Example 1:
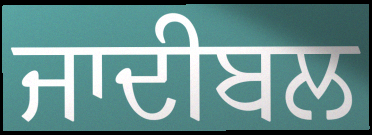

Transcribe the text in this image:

ਜਾਦੀਬਲ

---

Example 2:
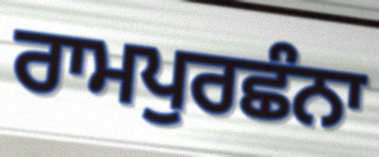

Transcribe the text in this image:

ਰਾਮਪੁਰਛੰਨਾ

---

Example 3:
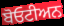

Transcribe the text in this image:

ਬੋਓਟੀਅਨ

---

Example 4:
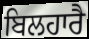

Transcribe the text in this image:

ਬਿਲਹਾਰੈ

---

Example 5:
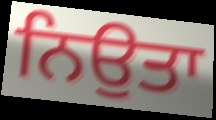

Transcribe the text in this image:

ਨਿਉਤਾ